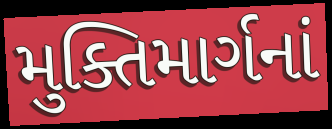
મુક્તિમાર્ગનાં